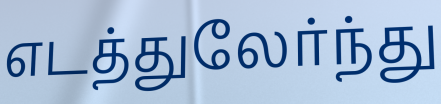
எடத்துலேர்ந்து